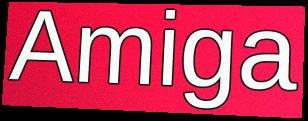
Amiga